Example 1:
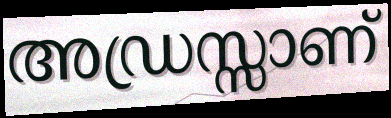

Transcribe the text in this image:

അഡ്രസ്സാണ്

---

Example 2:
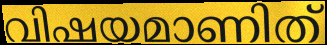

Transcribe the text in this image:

വിഷയമാണിത്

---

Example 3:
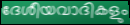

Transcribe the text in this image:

ദേശീയവാദികളും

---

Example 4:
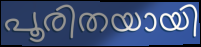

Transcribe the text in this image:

പൂരിതയായി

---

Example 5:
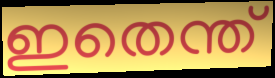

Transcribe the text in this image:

ഇതെന്ത്